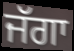
ਜੱਗਾ